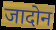
जादोन